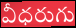
వీధరుగు